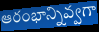
ఆరంభాన్నివ్వగా